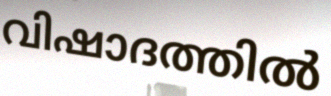
വിഷാദത്തിൽ